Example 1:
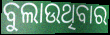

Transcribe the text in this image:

ବୁଲାଉଥିବାର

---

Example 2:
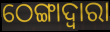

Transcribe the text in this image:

ଠେଙ୍ଗାଦ୍ୱାରା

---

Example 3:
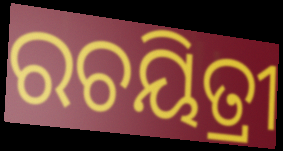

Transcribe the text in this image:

ରଚୟିତ୍ରୀ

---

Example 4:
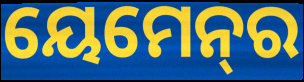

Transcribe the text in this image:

ୟେମେନ୍‌ର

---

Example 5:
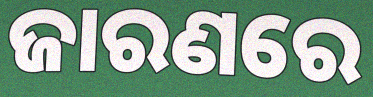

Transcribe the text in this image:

ଜାରଣରେ